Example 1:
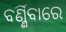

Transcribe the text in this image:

ବର୍ଣ୍ଣିବାରେ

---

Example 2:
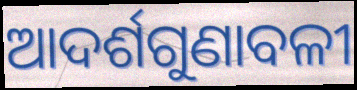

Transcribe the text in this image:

ଆଦର୍ଶଗୁଣାବଳୀ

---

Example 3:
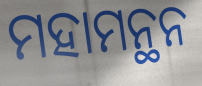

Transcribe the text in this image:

ମହାମନ୍ଥନ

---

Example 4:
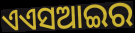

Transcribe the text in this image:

ଏଏସଆଇର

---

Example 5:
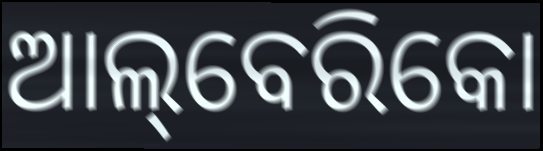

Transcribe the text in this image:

ଆଲ୍‌ବେରିକୋ